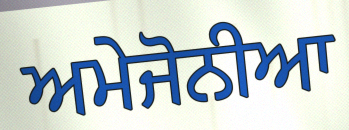
ਅਮੇਜੋਨੀਆ